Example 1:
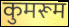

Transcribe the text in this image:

कुमरूम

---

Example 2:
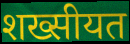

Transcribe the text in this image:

शख्सीयत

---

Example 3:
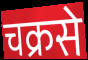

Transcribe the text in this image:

चक्रसे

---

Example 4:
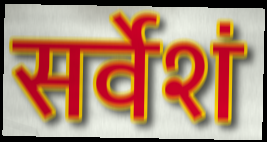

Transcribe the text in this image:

सर्वेशं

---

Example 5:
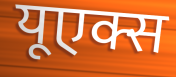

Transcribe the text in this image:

यूएक्स